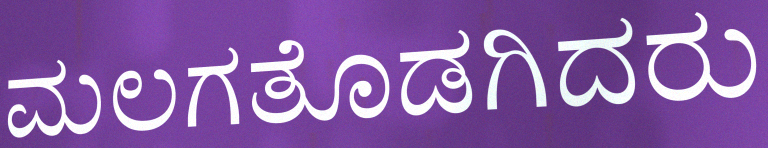
ಮಲಗತೊಡಗಿದರು